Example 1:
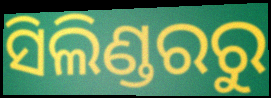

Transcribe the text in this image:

ସିଲିଣ୍ଡରରୁ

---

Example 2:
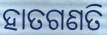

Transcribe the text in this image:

ହାତଗଣତି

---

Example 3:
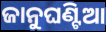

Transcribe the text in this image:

ଜାନୁଘଣ୍ଟିଆ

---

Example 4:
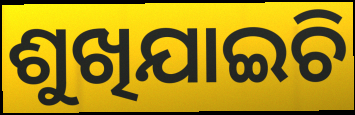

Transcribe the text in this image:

ଶୁଖିଯାଇଚି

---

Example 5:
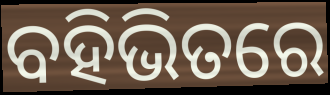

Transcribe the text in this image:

ବହିଭିତରେ